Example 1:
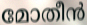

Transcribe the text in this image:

മോതീൻ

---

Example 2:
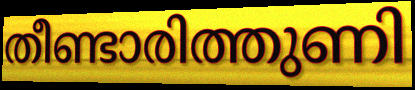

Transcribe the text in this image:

തീണ്ടാരിത്തുണി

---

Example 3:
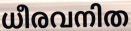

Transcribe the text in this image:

ധീരവനിത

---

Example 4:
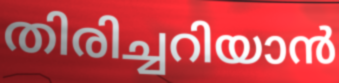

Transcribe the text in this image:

തിരിച്ചറിയാൻ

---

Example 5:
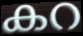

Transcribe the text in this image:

കറ